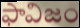
ఫావిజం